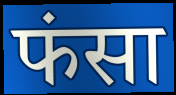
फंसा